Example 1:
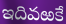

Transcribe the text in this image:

ఇదివఱకే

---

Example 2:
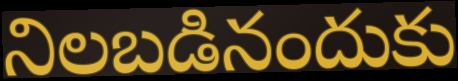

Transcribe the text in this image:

నిలబడినందుకు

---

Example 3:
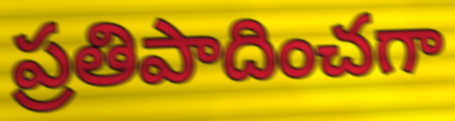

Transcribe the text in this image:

ప్రతిపాదించగా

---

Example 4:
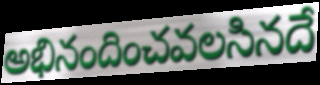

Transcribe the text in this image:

అభినందించవలసినదే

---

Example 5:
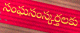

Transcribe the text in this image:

సంఘసంస్కర్తలకు